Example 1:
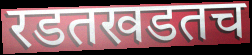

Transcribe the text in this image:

रडतखडतच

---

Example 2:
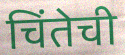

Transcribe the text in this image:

चिंतेची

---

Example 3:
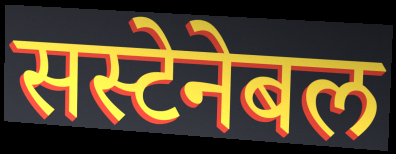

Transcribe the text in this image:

सस्टेनेबल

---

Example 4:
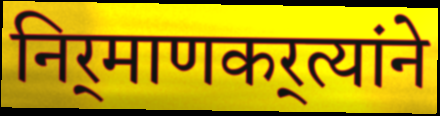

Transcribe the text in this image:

निर्माणकर्त्यांने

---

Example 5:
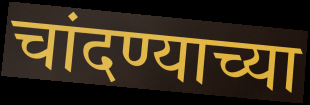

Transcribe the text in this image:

चांदण्याच्या